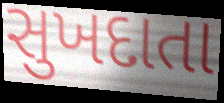
સુખદાતા